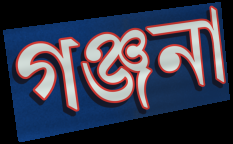
গঞ্জনা